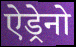
ऐड्रेनो